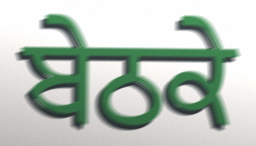
ਬੇਠਕੇ